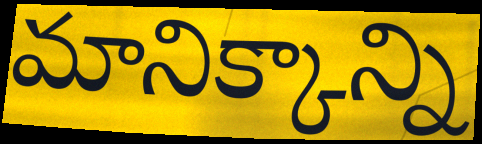
మానిక్కాన్ని